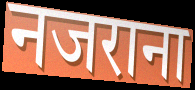
नजराना